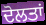
ਦੋਲਤਾਂ